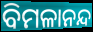
ବିମଳାନନ୍ଦ